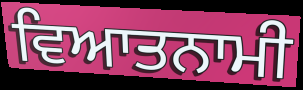
ਵਿਆਤਨਾਮੀ